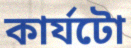
কাৰ্যটো